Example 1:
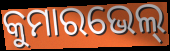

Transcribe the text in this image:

କୁମାରଭେଲ୍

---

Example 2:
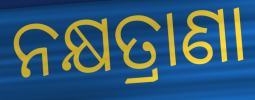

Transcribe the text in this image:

ନକ୍ଷତ୍ରାଣା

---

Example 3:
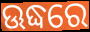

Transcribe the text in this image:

ଊଦ୍ଧରେ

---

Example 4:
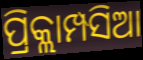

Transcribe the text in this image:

ପ୍ରିକ୍ଲାମ୍ପସିଆ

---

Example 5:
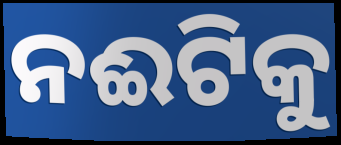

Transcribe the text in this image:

ନଈଟିକୁ